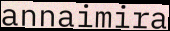
annaimira